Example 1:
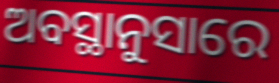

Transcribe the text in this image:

ଅବସ୍ଥାନୁସାରେ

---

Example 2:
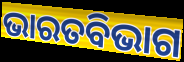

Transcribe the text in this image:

ଭାରତବିଭାଗ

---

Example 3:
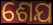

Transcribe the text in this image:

ଶେଯ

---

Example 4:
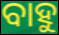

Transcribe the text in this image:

ବାହୁ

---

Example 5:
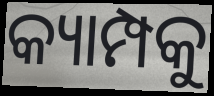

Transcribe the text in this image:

କ୍ୟାମ୍ପକୁ